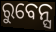
ରୁବେନ୍ସ